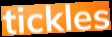
tickles